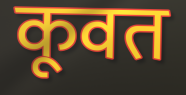
कूवत